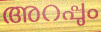
അറപ്പും